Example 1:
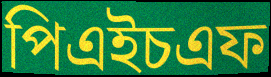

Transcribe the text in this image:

পিএইচএফ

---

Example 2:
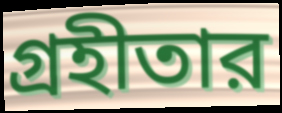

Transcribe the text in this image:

গ্রহীতার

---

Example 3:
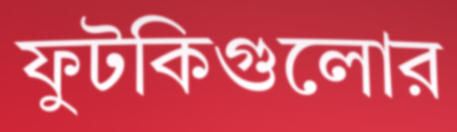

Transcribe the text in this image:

ফুটকিগুলোর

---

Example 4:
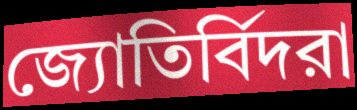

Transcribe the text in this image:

জ্যোতির্বিদরা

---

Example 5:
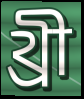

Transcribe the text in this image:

থ্রী